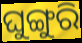
ଘୁଙ୍ଗୁରି